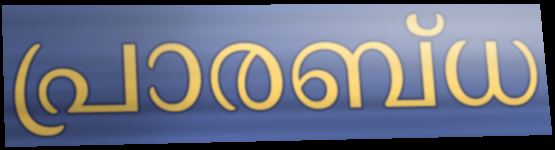
പ്രാരബ്ധ